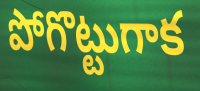
పోగొట్టుగాక